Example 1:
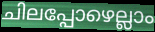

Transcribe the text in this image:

ചിലപ്പോഴെല്ലാം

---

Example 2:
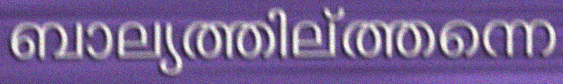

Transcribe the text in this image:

ബാല്യത്തില്ത്തന്നെ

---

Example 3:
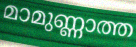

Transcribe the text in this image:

മാമുണ്ണാത്ത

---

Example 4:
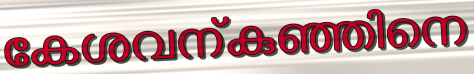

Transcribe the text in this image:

കേശവന്കുഞ്ഞിനെ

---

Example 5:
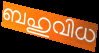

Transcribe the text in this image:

ബഹുവിധ